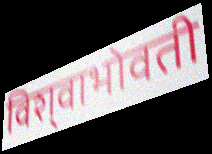
विश्वाभोवती